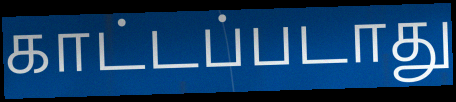
காட்டப்படாது